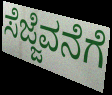
ಸೆಜ್ಜೆವನೆಗೆ